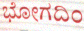
ಭೋಗದಿಂ